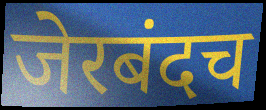
जेरबंदच